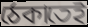
ঠেকাতেই